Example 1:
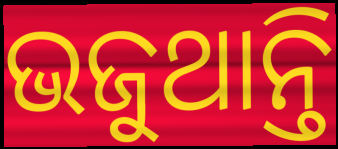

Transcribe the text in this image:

ଭଜୁଥାନ୍ତି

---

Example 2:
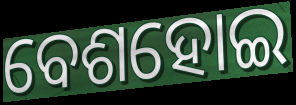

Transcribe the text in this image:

ବେଶହୋଇ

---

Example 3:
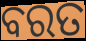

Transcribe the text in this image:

ବରତ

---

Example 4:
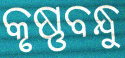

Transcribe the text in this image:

କୃଷ୍ଣବନ୍ଧୁ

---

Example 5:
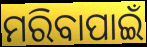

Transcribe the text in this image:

ମରିବାପାଇଁ